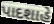
પાદશાહે